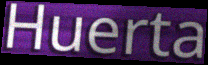
Huerta